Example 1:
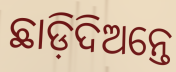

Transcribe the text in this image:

ଛାଡ଼ିଦିଅନ୍ତେ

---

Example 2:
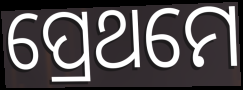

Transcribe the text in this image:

ପ୍ରେଥମେ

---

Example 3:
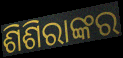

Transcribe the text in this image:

ଶିଶିରାଙ୍କର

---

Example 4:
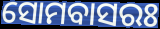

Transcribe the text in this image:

ସୋମବାସରଃ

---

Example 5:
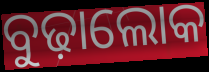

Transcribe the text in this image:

ବୁଢ଼ାଲୋକ